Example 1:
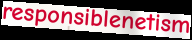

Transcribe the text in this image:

responsiblenetism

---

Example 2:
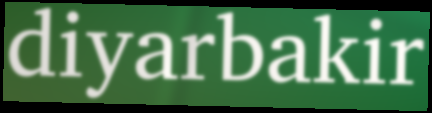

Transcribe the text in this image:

diyarbakir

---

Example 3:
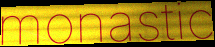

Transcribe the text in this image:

monastic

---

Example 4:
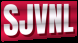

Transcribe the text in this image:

SJVNL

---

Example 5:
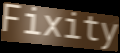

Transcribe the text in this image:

Fixity